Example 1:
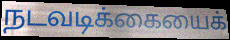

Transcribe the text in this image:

நடவடிக்கையைக்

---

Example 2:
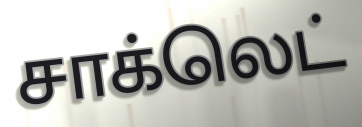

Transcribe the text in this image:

சாக்லெட்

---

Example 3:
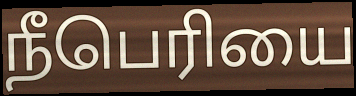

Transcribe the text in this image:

நீபெரியை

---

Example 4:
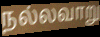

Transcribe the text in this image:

நல்லவாறு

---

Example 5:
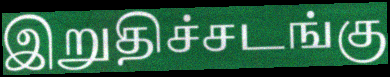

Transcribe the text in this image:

இறுதிச்சடங்கு